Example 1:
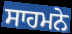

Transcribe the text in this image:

ਸਾਹਮਨੇ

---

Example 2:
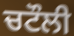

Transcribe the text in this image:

ਚਟੌਲੀ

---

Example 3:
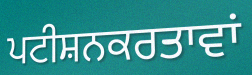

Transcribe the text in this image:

ਪਟੀਸ਼ਨਕਰਤਾਵਾਂ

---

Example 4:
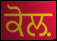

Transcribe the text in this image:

ਕੋਲ਼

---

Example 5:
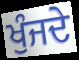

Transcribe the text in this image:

ਖੁੰਜਦੇ